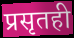
प्रसृतही